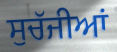
ਸੁਚੱਜੀਆਂ